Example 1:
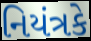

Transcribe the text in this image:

નિયંત્રકે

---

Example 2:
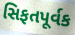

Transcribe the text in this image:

સિફતપૂર્વક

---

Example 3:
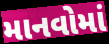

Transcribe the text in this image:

માનવોમાં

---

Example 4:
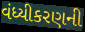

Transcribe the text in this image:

વંધ્યીકરણની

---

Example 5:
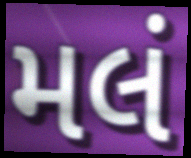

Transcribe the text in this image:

મલં